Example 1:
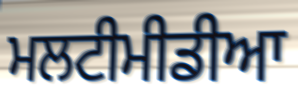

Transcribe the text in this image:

ਮਲਟੀਮੀਡੀਆ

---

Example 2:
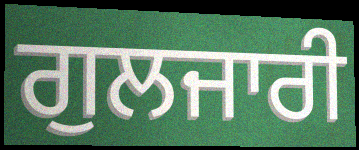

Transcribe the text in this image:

ਗੁਲਜਾਰੀ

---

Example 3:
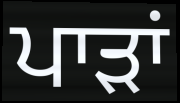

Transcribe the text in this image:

ਪਾੜਾਂ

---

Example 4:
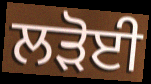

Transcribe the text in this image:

ਲੜੋਈ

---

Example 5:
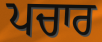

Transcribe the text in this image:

ਪਚਾਰ